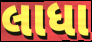
લાધા